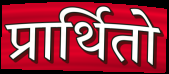
प्रार्थितो